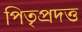
পিতৃপ্রদত্ত